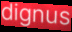
dignus